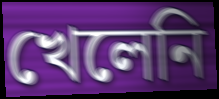
খেলেনি